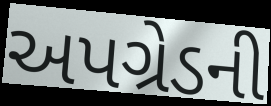
અપગ્રેડની